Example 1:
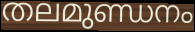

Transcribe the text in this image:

തലമുണ്ഡനം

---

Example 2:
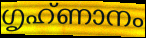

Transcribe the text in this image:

ഗൃഹ്ണാനം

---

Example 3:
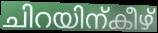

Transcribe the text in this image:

ചിറയിന്കീഴ്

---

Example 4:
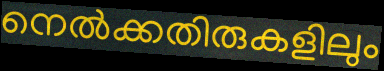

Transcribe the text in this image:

നെൽക്കതിരുകളിലും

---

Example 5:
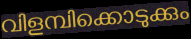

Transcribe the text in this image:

വിളമ്പിക്കൊടുക്കും